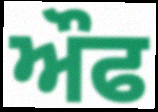
ਔਫ